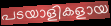
പടയാളികളായ